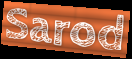
Sarod